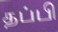
தப்பி